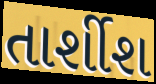
તાર્શીશ